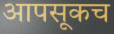
आपसूकच